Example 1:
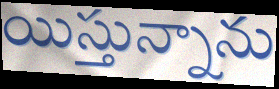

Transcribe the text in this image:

యిస్తున్నాను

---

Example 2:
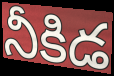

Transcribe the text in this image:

నీకిడ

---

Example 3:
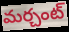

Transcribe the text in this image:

మర్చంట్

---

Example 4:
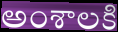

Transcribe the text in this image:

అంశాలకి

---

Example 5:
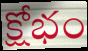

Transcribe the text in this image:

క్షోభం